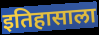
इतिहासाला